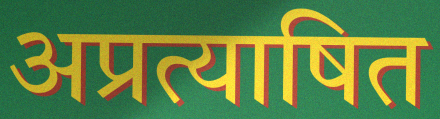
अप्रत्याषित